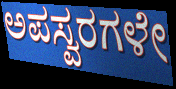
ಅಪಸ್ವರಗಳೇ